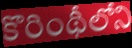
కొరింథీలోని